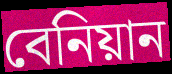
বেনিয়ান